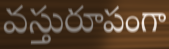
వస్తురూపంగా